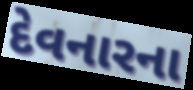
દેવનારના